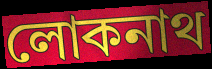
লোকনাথ